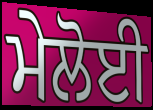
ਮੇਲੋਈ